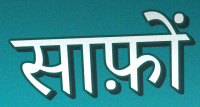
साफ़ों